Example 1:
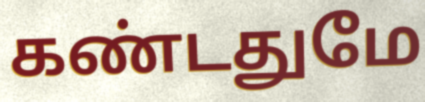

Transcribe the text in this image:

கண்டதுமே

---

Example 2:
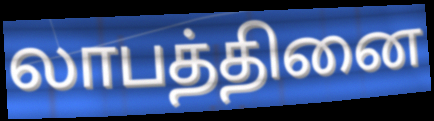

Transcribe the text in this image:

லாபத்தினை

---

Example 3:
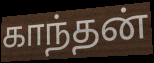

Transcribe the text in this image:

காந்தன்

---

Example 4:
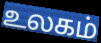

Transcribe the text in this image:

உலகம்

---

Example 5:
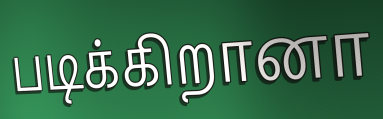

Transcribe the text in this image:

படிக்கிறானா